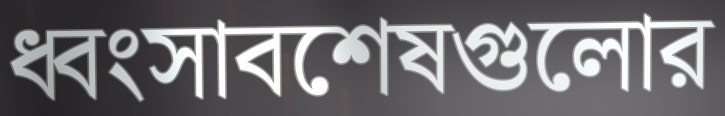
ধ্বংসাবশেষগুলোর